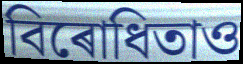
বিৰোধিতাও